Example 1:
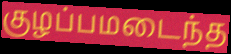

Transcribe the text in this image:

குழப்பமடைந்த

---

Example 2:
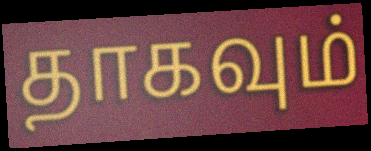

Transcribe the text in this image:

தாகவும்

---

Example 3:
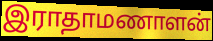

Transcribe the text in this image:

இராதாமணாளன்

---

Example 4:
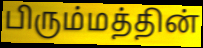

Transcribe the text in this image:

பிரும்மத்தின்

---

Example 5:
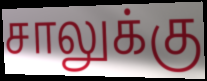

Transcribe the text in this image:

சாலுக்கு